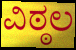
ವಿಠ್ಠಲ